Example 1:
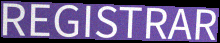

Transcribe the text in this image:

REGISTRAR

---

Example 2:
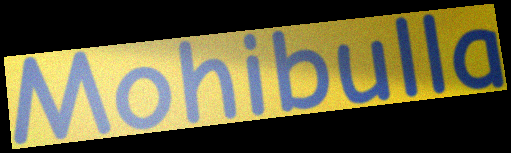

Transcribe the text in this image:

Mohibulla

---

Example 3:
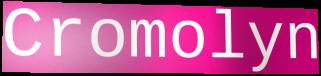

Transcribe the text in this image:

Cromolyn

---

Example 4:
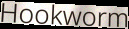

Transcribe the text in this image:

Hookworm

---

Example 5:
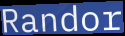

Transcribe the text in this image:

Randor